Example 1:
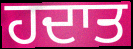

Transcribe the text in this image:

ਹਦਾਤ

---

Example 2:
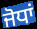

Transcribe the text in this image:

ਜੋਧਾਂ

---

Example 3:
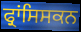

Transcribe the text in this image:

ਫ੍ਰਾਂਸਿਸਕਨ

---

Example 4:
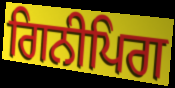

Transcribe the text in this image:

ਗਿਨੀਪਿਗ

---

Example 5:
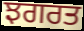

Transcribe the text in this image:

ਝਗਰਤ